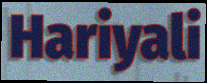
Hariyali